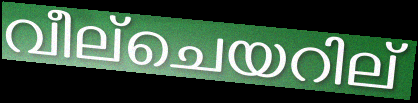
വീല്ചെയറില്